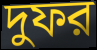
দুফর